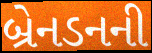
બ્રેનડનની